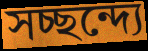
সচ্ছন্দ্যে